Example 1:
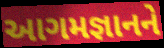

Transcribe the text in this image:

આગમજ્ઞાનને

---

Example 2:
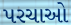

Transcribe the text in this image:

પરચાઓ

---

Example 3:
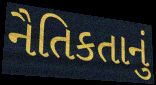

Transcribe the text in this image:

નૈતિકતાનું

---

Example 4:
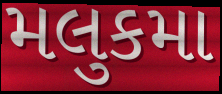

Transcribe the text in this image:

મલુકમા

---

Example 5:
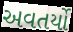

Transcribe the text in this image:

અવતર્યો